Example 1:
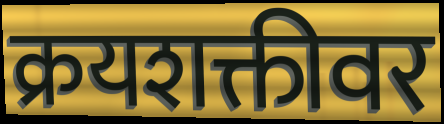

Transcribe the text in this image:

क्रयशक्तीवर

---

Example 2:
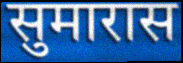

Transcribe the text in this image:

सुमारास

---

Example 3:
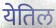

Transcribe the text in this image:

येतिल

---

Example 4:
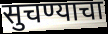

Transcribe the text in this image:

सुचण्याचा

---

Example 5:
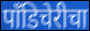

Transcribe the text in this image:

पाँडिचेरीचा